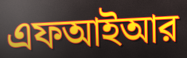
এফআইআর